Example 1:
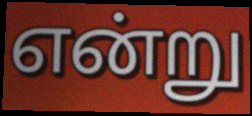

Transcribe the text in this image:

என்று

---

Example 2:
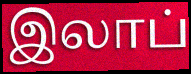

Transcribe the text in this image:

இலாப்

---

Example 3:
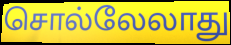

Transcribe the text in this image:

சொல்லேலாது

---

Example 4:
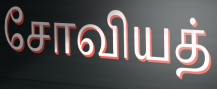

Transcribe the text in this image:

சோவியத்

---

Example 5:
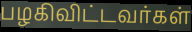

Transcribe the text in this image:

பழகிவிட்டவர்கள்